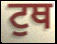
ਟੁਥ